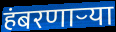
हंबरणाऱ्या